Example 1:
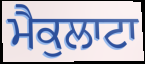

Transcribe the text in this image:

ਮੈਕੁਲਾਟਾ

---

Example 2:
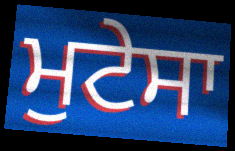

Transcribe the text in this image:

ਮੁਟੇਸਾ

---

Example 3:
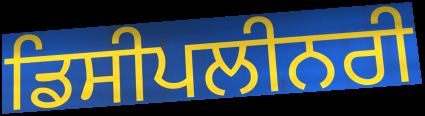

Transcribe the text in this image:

ਡਿਸੀਪਲੀਨਰੀ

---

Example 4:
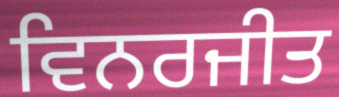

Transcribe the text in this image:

ਵਿਨਰਜੀਤ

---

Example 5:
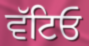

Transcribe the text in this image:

ਵੱਟਿਓ